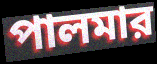
পালমার